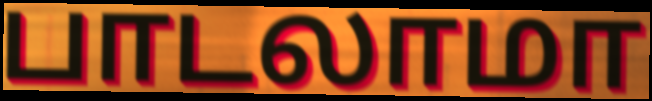
பாடலாமா